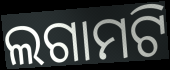
ଲଗାମଟି